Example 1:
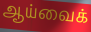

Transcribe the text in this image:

ஆய்வைக்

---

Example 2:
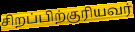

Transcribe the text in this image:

சிறப்பிற்குரியவர்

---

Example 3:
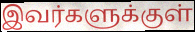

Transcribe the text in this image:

இவர்களுக்குள்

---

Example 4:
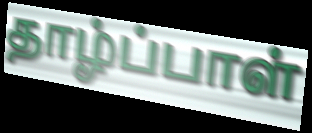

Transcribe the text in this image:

தாழ்ப்பாள்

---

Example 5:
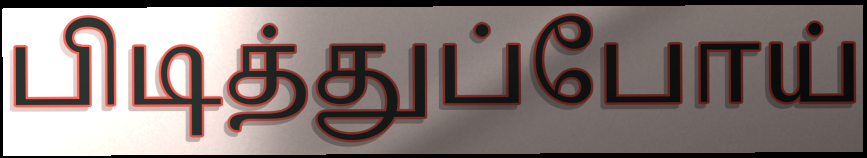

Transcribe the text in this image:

பிடித்துப்போய்